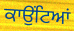
ਕਾਉਂਟਿਆਂ